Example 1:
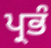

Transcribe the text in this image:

ਪ੍ਰਭੰ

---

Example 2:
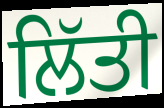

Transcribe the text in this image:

ਲਿੱਤੀ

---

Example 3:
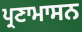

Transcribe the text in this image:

ਪ੍ਰਣਾਮਾਸਨ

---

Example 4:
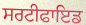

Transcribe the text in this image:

ਸਰਟੀਫਾਇਡ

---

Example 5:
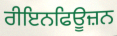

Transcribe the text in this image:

ਰੀਇਨਫਿਊਜ਼ਨ